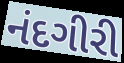
નંદગીરી